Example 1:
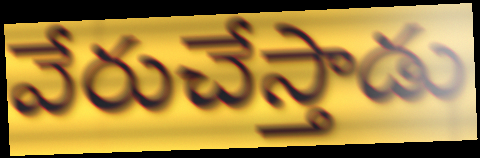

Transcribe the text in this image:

వేరుచేస్తాడు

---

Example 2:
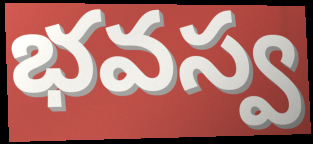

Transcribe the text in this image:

భవస్వ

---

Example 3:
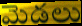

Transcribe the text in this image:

మెడలు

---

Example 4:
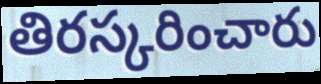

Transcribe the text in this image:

తిరస్కరించారు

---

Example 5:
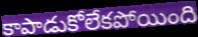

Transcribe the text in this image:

కాపాడుకోలేకపోయింది